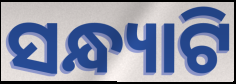
ସନ୍ଧ୍ୟାଟି